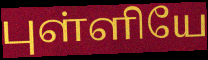
புள்ளியே